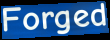
Forged